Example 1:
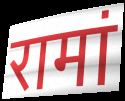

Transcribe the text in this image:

रामां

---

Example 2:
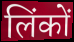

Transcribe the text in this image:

लिंकों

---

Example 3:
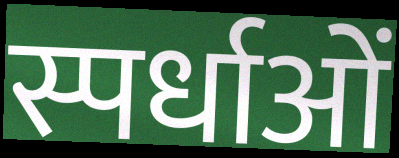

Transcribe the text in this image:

स्‍पर्धाओं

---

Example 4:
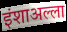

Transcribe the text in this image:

इंशाअल्ला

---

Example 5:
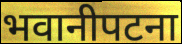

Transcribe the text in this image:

भवानीपटना